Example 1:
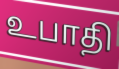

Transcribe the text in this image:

உபாதி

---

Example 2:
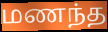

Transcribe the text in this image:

மணந்த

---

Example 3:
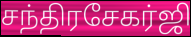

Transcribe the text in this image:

சந்திரசேகர்ஜி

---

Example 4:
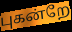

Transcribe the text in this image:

புகன்றே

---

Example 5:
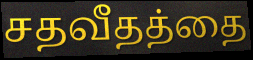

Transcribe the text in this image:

சதவீதத்தை